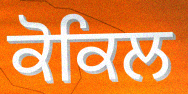
ਕੋਕਿਲ